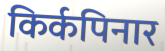
किर्कपिनार